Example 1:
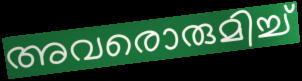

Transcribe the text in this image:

അവരൊരുമിച്ച്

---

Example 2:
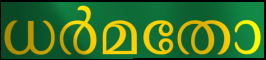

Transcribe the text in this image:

ധർമതോ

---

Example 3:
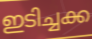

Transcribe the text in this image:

ഇടിച്ചക്ക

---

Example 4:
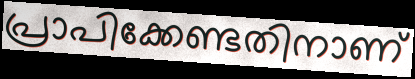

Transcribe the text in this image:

പ്രാപിക്കേണ്ടതിനാണ്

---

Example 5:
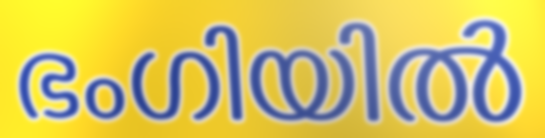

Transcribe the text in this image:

ഭംഗിയിൽ